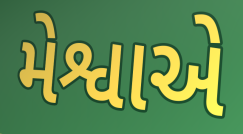
મેશ્વાએ